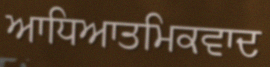
ਆਧਿਆਤਮਿਕਵਾਦ